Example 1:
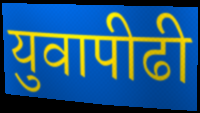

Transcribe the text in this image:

युवापीढी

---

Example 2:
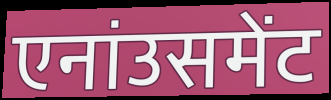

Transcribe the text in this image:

एनांउसमेंट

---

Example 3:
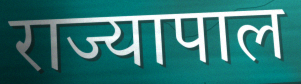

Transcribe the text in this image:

राज्यापाल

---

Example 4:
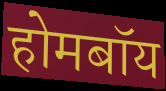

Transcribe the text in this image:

होमबॉय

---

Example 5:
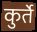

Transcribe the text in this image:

कुर्ते